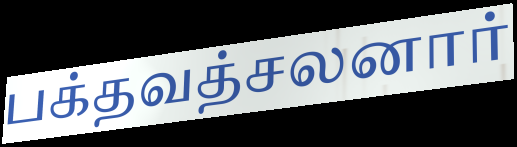
பக்தவத்சலனார்